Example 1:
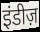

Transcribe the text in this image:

इंडीज़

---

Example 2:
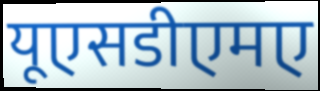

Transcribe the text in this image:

यूएसडीएमए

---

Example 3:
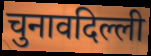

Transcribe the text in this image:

चुनावदिल्ली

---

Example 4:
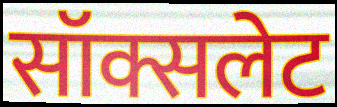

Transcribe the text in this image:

सॉक्सलेट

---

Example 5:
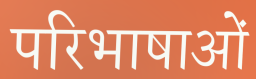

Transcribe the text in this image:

परिभाषाओं